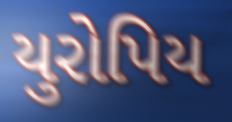
યુરોપિય